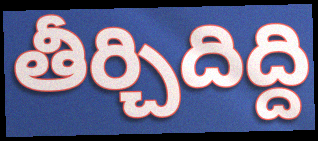
తీర్చిదిద్ది